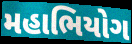
મહાભિયોગ